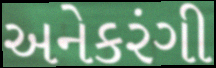
અનેકરંગી